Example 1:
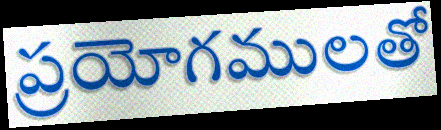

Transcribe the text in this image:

ప్రయోగములతో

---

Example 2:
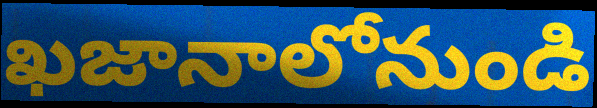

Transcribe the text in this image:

ఖజానాలోనుండి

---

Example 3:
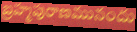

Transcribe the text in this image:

బ్రహ్మపురాణమునందు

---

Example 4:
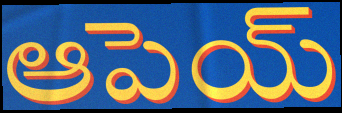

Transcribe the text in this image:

ఆపెయ్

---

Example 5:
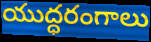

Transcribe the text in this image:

యుద్ధరంగాలు